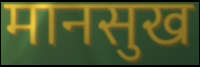
मानसुख